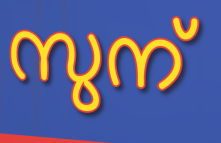
സുന്